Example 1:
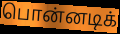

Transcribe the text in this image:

பொன்னடிக்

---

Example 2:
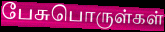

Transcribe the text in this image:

பேசுபொருள்கள்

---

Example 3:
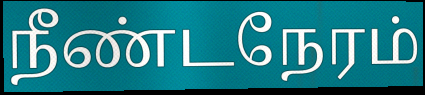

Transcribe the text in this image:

நீண்டநேரம்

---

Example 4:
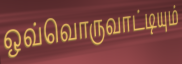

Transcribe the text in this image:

ஒவ்வொருவாட்டியும்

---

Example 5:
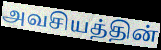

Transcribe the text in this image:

அவசியத்தின்